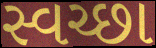
સ્વચ્છા